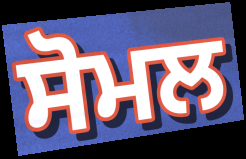
ਸੋਮਲ